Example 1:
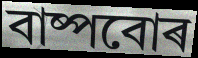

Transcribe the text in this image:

বাষ্পবোৰ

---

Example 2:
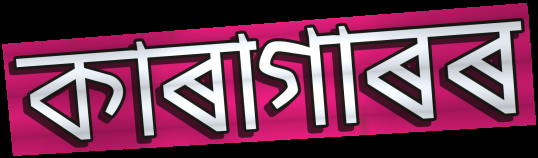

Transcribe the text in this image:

কাৰাগাৰৰ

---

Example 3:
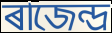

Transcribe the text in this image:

ৰাজেন্দ্ৰ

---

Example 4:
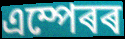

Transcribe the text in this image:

এম্পেৰৰ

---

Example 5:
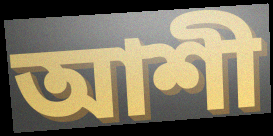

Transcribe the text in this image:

আশী